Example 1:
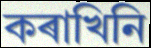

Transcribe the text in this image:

কৰাখিনি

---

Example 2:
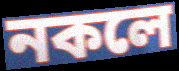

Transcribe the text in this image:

নকলে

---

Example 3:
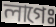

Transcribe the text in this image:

লাগেঃ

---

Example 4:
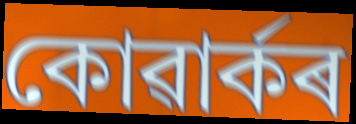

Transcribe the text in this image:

কোৱাৰ্কৰ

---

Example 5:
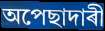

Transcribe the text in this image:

অপেছাদাৰী